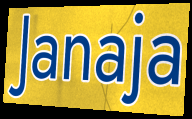
Janaja